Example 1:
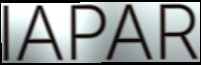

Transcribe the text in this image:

IAPAR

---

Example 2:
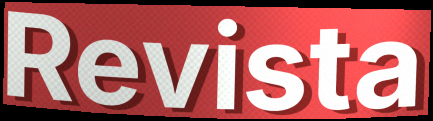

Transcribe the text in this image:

Revista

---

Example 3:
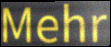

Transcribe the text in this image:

Mehr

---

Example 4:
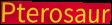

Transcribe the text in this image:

Pterosaur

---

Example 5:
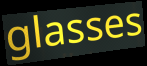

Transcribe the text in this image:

glasses